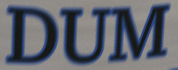
DUM